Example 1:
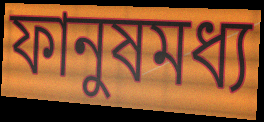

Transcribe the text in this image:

ফানুষমধ্য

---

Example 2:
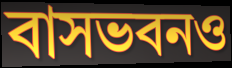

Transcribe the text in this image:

বাসভবনও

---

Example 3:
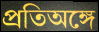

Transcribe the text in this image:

প্রতিঅঙ্গে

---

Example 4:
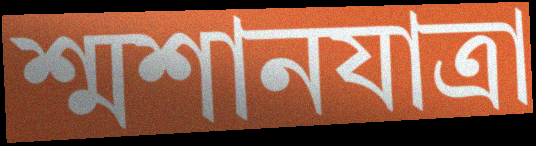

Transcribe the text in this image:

শ্মশানযাত্রা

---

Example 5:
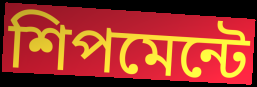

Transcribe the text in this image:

শিপমেন্টে